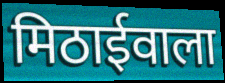
मिठाईवाला